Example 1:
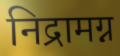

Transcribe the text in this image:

निद्रामग्न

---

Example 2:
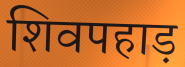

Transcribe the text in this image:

शिवपहाड़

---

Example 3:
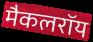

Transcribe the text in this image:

मैकलरॉय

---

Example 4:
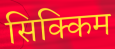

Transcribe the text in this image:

सिक्किम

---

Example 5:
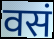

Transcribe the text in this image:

वसं